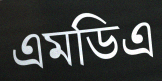
এমডিএ